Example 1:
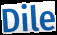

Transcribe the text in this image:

Dile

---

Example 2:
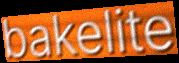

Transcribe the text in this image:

bakelite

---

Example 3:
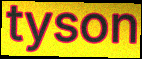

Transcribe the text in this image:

tyson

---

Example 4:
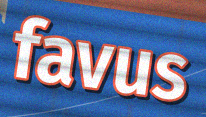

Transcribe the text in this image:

favus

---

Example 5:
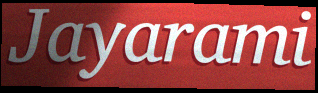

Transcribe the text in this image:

Jayarami